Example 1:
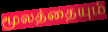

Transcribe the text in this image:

மூலத்தையும்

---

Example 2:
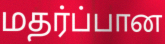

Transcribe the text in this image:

மதர்ப்பான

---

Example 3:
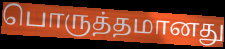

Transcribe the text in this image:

பொருத்தமானது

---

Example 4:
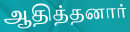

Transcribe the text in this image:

ஆதித்தனார்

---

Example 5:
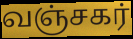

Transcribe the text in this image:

வஞ்சகர்